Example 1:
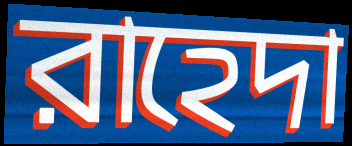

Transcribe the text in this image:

রাহেদা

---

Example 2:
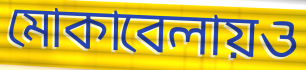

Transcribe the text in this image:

মোকাবেলায়ও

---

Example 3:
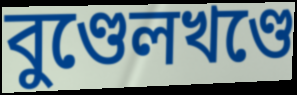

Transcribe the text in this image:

বুণ্ডেলখণ্ডে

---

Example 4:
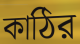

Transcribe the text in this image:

কাঠির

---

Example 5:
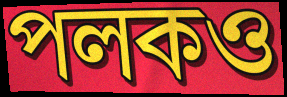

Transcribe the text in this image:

পলকও